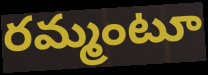
రమ్మంటూ